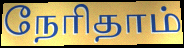
நேரிதாம்